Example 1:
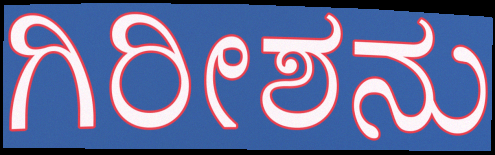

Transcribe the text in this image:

ಗಿರೀಶನು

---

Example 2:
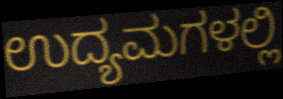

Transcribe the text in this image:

ಉದ್ಯಮಗಳಲ್ಲಿ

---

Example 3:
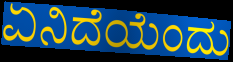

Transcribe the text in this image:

ಏನಿದೆಯೆಂದು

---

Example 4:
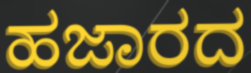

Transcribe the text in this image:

ಹಜಾರದ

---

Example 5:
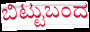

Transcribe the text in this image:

ಬಿಟ್ಟುಬಂದ